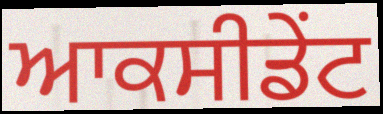
ਆਕਸੀਡੇਂਟ